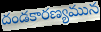
దండకారణ్యమున